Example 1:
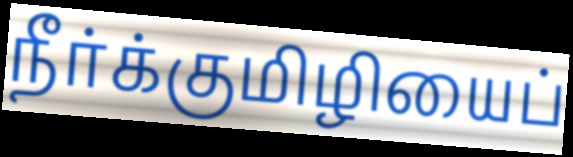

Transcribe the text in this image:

நீர்க்குமிழியைப்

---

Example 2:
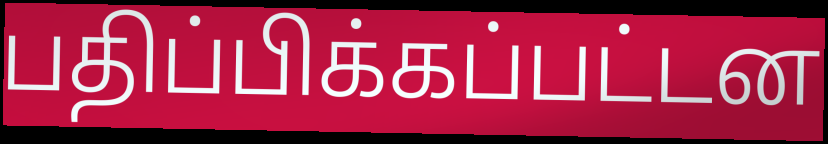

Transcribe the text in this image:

பதிப்பிக்கப்பட்டன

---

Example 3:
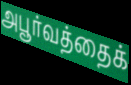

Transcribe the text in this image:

அபூர்வத்தைக்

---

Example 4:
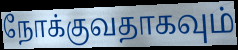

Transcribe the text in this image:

நோக்குவதாகவும்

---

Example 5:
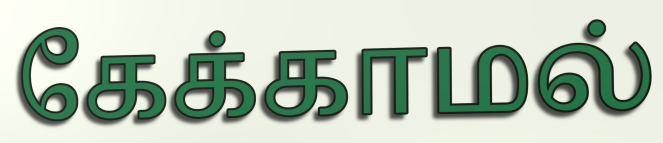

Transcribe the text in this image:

கேக்காமல்